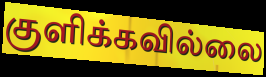
குளிக்கவில்லை